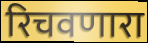
रिचवणारा